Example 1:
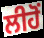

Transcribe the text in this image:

ਲੀਹੋਂ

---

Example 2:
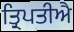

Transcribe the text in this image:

ਤ੍ਰਿਪਤੀਐ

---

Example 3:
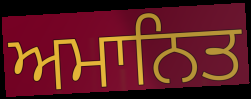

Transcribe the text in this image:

ਅਮਾਨਿਤ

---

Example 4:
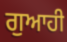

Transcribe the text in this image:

ਗੁਆਹੀ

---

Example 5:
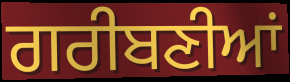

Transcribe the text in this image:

ਗਰੀਬਣੀਆਂ